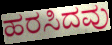
ಹರಸಿದವು